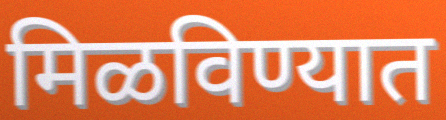
मिळविण्यात